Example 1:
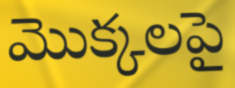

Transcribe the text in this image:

మొక్కలపై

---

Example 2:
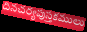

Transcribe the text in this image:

దినచర్యపుస్తకములు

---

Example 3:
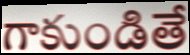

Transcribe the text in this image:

గాకుండితే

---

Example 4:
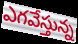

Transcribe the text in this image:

ఎగవేస్తున్న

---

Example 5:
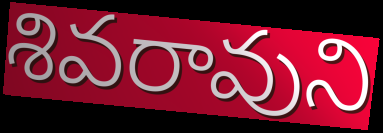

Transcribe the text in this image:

శివరావుని